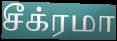
சீக்ரமா